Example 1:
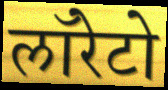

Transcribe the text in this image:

लॉरेटो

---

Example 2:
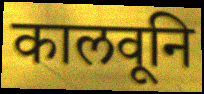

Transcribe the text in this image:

कालवूनि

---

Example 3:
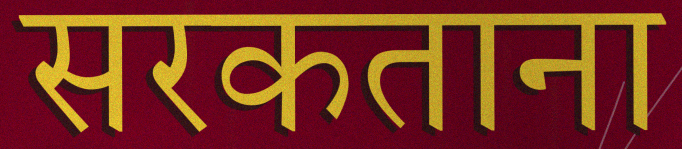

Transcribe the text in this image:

सरकताना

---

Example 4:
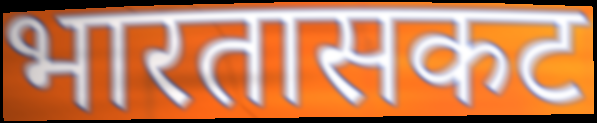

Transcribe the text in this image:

भारतासकट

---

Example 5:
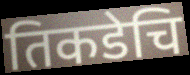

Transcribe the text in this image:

तिकडेचि